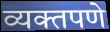
व्यक्तपणे